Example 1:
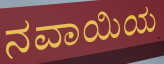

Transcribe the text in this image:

ನವಾಯಿಯ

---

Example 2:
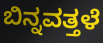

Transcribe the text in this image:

ಬಿನ್ನವತ್ತಳೆ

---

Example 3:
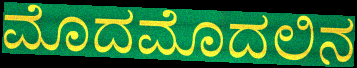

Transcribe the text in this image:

ಮೊದಮೊದಲಿನ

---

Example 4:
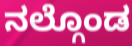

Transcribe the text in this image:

ನಲ್ಗೊಂಡ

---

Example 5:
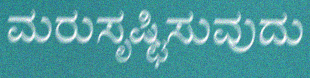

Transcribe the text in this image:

ಮರುಸೃಷ್ಟಿಸುವುದು